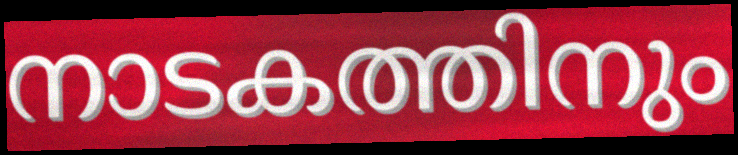
നാടകത്തിനും